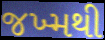
જખ્મથી